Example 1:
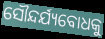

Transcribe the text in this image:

ସୌନ୍ଦର୍ଯ୍ୟବୋଧକୁ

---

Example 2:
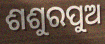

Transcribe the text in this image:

ଶଶୁରପୁଅ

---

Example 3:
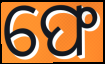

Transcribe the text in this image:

ଫେ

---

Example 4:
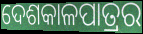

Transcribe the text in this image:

ଦେଶକାଳପାତ୍ରର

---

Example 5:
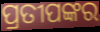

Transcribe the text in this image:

ପ୍ରତୀପଙ୍କର